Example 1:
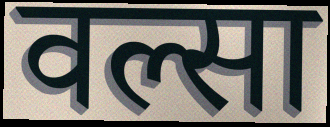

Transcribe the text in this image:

वल्सा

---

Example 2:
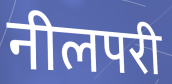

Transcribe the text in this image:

नीलपरी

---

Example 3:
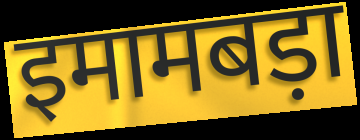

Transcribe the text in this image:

इमामबड़ा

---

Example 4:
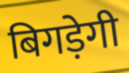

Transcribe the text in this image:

बिगड़ेगी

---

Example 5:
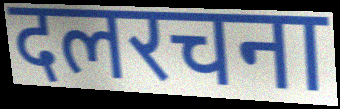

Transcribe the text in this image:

दलरचना